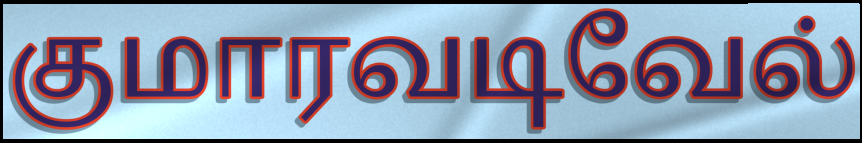
குமாரவடிவேல்